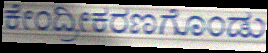
ಕೇಂದ್ರೀಕರಣಗೊಂಡು